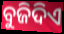
ବୁଜିଦିଏ